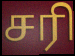
சரி